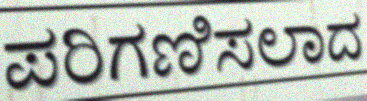
ಪರಿಗಣಿಸಲಾದ